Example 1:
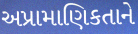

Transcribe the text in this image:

અપ્રામાણિકતાને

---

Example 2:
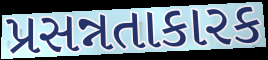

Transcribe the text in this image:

પ્રસન્નતાકારક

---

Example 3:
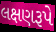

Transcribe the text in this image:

લક્ષણરૂપે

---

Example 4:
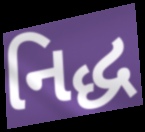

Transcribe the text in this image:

નિદ્ધ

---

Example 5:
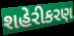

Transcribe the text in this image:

શહેરીકરણ